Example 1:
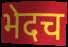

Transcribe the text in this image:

भेदच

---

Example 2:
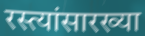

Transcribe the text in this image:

रस्त्यांसारख्या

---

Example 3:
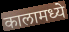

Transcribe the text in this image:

कालामध्ये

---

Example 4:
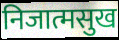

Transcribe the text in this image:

निजात्मसुख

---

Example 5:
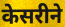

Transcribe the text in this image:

केसरीने